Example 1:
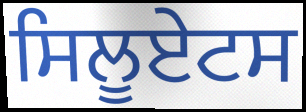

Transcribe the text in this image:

ਸਿਲੂਏਟਸ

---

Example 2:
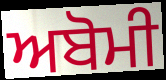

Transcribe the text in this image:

ਅਬੋਮੀ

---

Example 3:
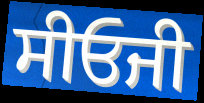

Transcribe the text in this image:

ਸੀਓਜੀ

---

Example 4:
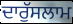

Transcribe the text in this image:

ਦਾਰੁੱਸਲਾਮ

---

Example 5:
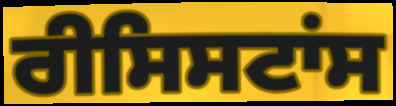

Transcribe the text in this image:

ਰੀਸਿਸਟਾਂਸ